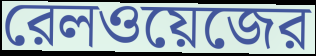
রেলওয়েজের